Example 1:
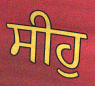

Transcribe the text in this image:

ਸੀਹੁ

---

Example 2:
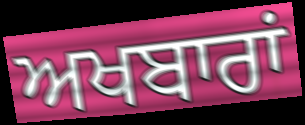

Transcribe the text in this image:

ਅਖਬਾਰਾਂ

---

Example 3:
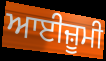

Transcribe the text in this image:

ਆਈਜ਼ੂਮੀ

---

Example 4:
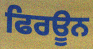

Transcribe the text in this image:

ਫਿਰਊਨ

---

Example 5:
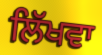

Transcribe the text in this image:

ਲਿੱਖਵਾ